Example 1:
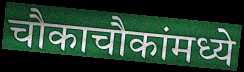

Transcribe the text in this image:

चौकाचौकांमध्ये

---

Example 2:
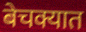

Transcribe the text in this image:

बेचक्यात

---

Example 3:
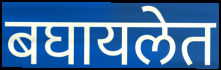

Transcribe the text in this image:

बघायलेत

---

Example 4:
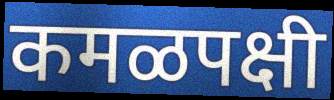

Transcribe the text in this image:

कमळपक्षी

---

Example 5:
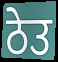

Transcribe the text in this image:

ठेउ